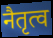
नैतृत्व